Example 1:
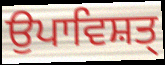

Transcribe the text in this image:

ਉਪਾਵਿਸ਼ਤ੍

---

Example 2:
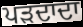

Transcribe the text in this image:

ਪੜਦਾਦਾ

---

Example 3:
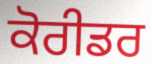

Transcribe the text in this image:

ਕੋਰੀਡਰ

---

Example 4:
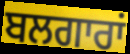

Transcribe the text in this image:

ਬਲਗਾਰਾਂ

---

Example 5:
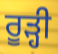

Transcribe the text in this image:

ਰੂੜ੍ਹੀ